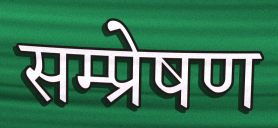
सम्प्रेषण